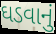
ઘડવાનું